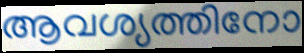
ആവശ്യത്തിനോ